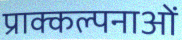
प्राक्कल्पनाओं